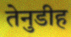
तेनुडीह